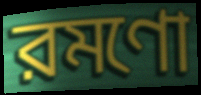
রমণো